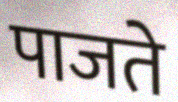
पाजते